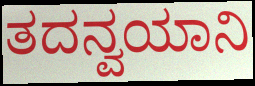
ತದನ್ವಯಾನಿ